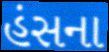
હંસના